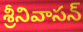
శ్రీనివాసన్